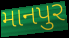
માનપુર